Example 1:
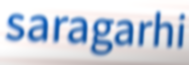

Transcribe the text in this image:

saragarhi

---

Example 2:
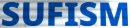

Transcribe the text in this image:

SUFISM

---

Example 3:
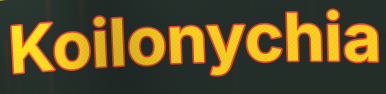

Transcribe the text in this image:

Koilonychia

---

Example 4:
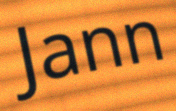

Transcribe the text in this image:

Jann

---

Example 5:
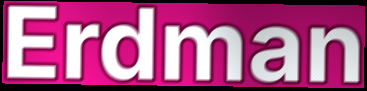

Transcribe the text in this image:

Erdman